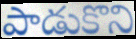
పాడుకొని